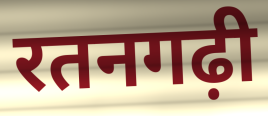
रतनगढ़ी